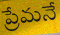
ప్రేమనే